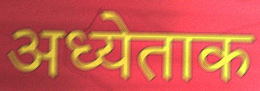
अध्येताक